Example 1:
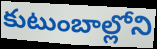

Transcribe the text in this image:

కుటుంబాల్లోని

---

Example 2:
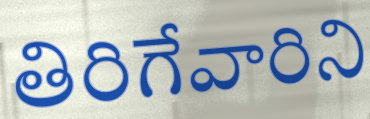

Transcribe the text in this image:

తిరిగేవారిని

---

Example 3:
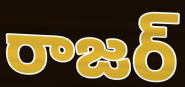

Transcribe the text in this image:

రాజర్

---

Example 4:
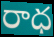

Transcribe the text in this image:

రాధ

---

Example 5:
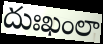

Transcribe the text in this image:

దుఃఖంలా